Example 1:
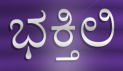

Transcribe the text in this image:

ಭಕ್ತಿಲಿ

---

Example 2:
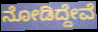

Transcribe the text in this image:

ನೋಡಿದ್ದೇವೆ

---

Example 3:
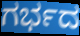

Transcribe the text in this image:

ಗರ್ಭದ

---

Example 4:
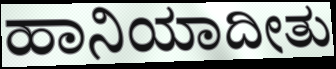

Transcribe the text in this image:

ಹಾನಿಯಾದೀತು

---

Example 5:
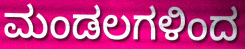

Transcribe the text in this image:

ಮಂಡಲಗಳಿಂದ